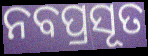
ନବପ୍ରସୂତ